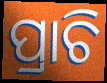
ପ୍ରାଚି